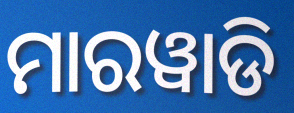
ମାରୱାଡି